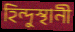
হিন্দুস্থানী